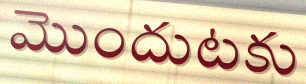
మొందుటకు